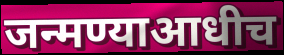
जन्मण्याआधीच